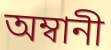
অম্বানী